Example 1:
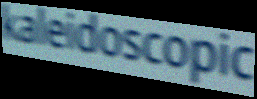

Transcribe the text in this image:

kaleidoscopic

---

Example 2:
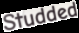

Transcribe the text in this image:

Studded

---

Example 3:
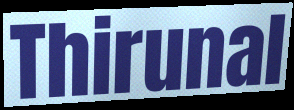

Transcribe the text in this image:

Thirunal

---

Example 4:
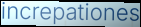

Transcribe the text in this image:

increpationes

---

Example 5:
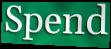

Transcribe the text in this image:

Spend